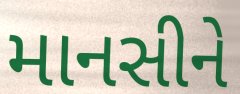
માનસીને